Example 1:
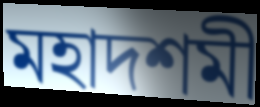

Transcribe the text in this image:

মহাদশমী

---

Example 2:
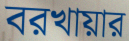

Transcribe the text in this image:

বরখায়ার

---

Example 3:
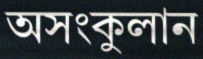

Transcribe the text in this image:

অসংকুলান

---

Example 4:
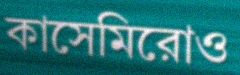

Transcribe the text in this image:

কাসেমিরোও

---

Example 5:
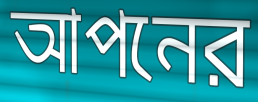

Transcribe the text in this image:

আপনের